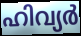
ഹിവ്യർ